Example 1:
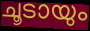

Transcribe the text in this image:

ചൂടായും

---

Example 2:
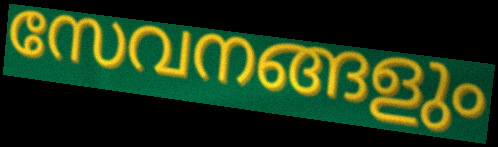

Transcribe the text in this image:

സേവനങ്ങളും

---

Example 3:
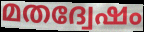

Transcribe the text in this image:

മതദ്വേഷം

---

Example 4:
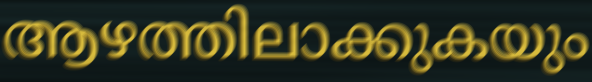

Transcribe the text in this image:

ആഴത്തിലാക്കുകയും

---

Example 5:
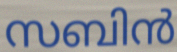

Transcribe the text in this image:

സബിൻ